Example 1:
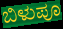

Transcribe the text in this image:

ಬಿಳುಪೂ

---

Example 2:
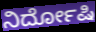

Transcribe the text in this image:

ನಿರ್ದೋಷಿ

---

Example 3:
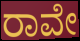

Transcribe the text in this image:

ರಾವೇ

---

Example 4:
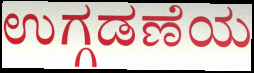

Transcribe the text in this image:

ಉಗ್ಗಡಣೆಯ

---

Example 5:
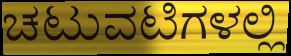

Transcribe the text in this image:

ಚಟುವಟಿಗಳಲ್ಲಿ